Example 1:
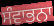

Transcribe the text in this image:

ਸੰਵਾਭਨਾ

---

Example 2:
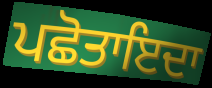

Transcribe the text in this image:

ਪਛੋਤਾਇਦਾ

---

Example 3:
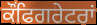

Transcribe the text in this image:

ਕੌਂਫਿਗਰੇਟਰਾਂ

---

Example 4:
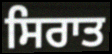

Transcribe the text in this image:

ਸਿਰਾਤ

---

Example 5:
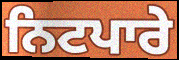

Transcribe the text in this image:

ਨਿਟਪਾਰੇ